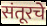
संतूरचे